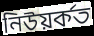
নিউয়ৰ্কত